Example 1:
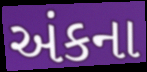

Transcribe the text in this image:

અંકના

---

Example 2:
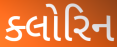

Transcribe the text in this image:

ક્લોરિન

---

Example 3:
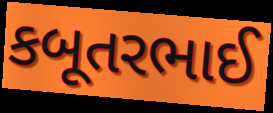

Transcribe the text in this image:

કબૂતરભાઈ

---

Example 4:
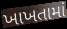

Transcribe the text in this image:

ખાખતામાં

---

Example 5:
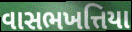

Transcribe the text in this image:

વાસભખત્તિયા